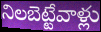
నిలబెట్టేవాళ్లు